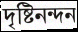
দৃষ্টিনন্দন